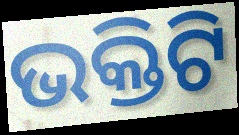
ଭକ୍ତିଟି